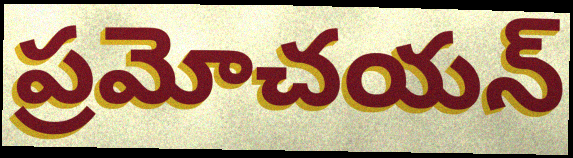
ప్రమోచయన్